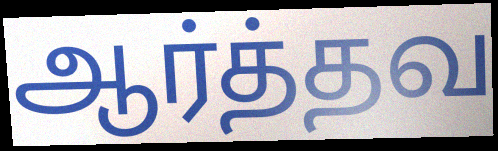
ஆர்த்தவ